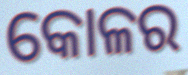
କୋଳର